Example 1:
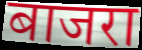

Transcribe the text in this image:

बाजरा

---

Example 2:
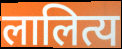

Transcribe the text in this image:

लालित्य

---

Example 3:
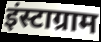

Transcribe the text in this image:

इंस्टाग्राम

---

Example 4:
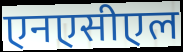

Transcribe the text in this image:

एनएसीएल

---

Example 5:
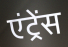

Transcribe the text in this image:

एंट्रेंस